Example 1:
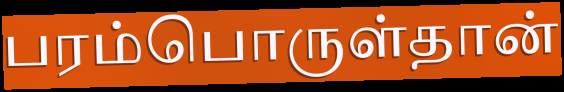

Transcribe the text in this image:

பரம்பொருள்தான்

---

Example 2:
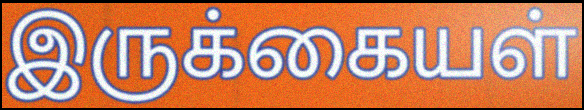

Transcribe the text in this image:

இருக்கையள்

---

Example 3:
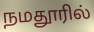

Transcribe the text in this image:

நமதூரில்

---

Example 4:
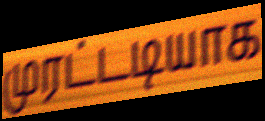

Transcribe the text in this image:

முரட்டடியாக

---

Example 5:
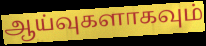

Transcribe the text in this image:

ஆய்வுகளாகவும்